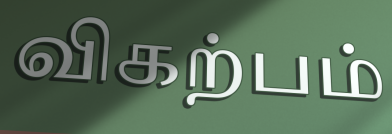
விகற்பம்